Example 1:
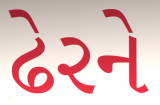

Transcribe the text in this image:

ઢેરને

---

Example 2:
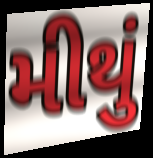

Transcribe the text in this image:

મીથું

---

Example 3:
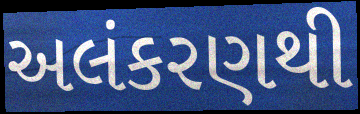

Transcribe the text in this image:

અલંકરણથી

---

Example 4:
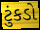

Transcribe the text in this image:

ટુંકડો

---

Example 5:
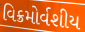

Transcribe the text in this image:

વિક્રમોર્વશીય